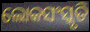
ଲୋକସଂସ୍କୃତି